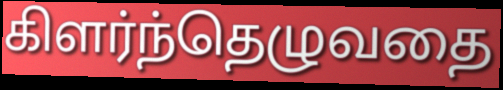
கிளர்ந்தெழுவதை